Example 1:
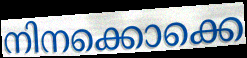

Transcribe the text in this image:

നിനക്കൊക്കെ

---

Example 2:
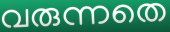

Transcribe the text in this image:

വരുന്നതെ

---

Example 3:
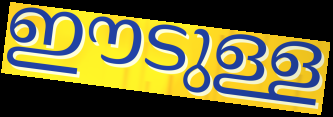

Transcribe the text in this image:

ഈടുള്ള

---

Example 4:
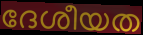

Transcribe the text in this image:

ദേശീയത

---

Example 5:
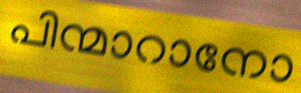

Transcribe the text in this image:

പിന്മാറാനോ